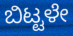
ಬಿಟ್ಟಳೇ